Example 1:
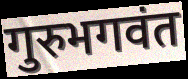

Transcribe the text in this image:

गुरुभगवंत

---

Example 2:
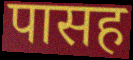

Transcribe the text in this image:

पासह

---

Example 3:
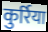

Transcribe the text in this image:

कुर्रिया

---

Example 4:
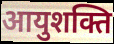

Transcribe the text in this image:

आयुशक्ति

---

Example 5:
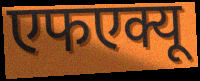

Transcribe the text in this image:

एफएक्यू